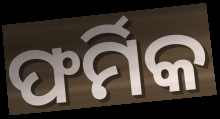
ଫର୍ମିକ